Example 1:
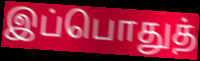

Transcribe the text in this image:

இப்பொதுத்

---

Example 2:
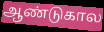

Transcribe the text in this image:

ஆண்டுகால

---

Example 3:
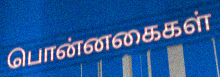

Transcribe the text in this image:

பொன்னகைகள்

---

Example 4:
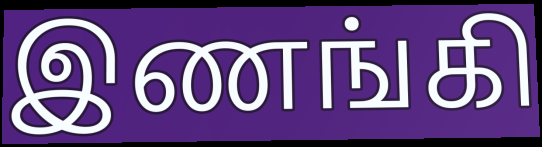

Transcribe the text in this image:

இணங்கி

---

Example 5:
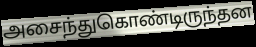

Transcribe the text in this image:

அசைந்துகொண்டிருந்தன